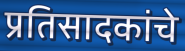
प्रतिसादकांचे